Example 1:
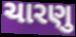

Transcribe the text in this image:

ચારણુ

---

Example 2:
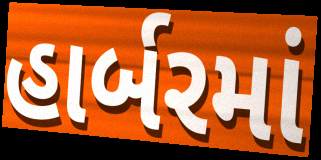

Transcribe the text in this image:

હાર્બરમાં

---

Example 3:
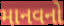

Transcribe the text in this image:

માનવનો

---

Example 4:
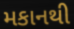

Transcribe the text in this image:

મકાનથી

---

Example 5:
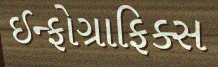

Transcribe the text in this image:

ઈન્ફોગ્રાફિક્સ